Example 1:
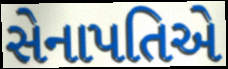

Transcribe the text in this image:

સેનાપતિએ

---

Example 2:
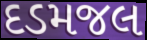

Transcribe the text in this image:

દડમજલ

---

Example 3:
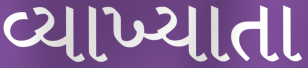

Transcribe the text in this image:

વ્યાખ્યાતા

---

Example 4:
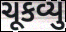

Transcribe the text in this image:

ચૂકવ્યુ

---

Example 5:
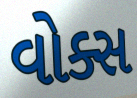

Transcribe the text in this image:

વોક્સ